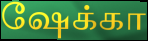
ஷேக்கா